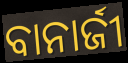
ବାନାର୍ଜୀ